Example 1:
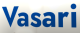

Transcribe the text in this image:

Vasari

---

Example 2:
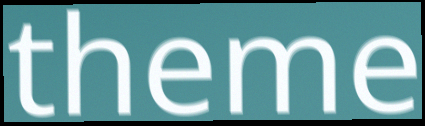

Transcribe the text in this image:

theme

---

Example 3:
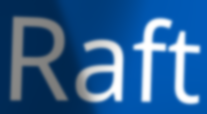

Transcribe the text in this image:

Raft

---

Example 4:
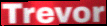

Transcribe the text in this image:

Trevor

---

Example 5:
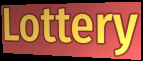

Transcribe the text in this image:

Lottery